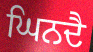
ਘਿਨਦੈ